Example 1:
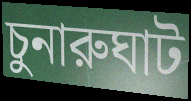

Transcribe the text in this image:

চুনারুঘাট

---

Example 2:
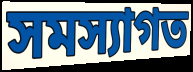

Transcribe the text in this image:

সমস্যাগত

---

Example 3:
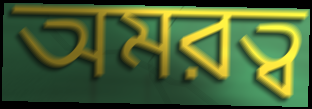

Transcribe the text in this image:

অমরত্ব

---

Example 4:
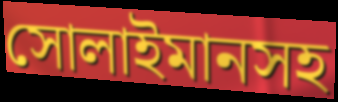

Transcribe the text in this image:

সোলাইমানসহ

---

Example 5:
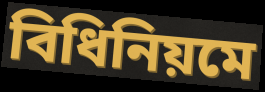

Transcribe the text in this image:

বিধিনিয়মে